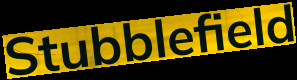
Stubblefield